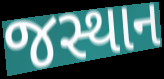
જસ્થાન